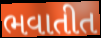
ભવાતીત